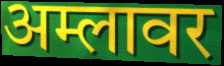
अम्लावर